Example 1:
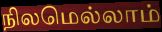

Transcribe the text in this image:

நிலமெல்லாம்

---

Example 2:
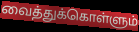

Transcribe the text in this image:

வைத்துக்கொள்ளும்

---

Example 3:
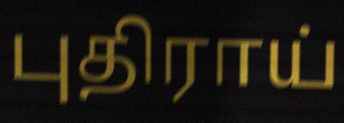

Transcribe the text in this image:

புதிராய்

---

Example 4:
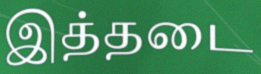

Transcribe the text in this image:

இத்தடை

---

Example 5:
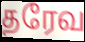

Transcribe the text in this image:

தரேவ